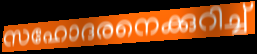
സഹോദരനെക്കുറിച്ച്